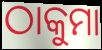
ଠାକୁମା